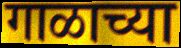
गाळाच्या